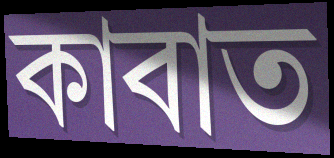
কাবাত